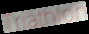
Triathlon